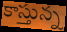
కాస్తున్న